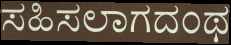
ಸಹಿಸಲಾಗದಂಥ